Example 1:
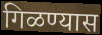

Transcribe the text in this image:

गिळण्यास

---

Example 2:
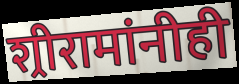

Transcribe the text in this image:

श्रीरामांनीही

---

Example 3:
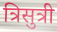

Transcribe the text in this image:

त्रिसुत्री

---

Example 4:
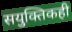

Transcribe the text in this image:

सयुक्तिकही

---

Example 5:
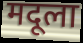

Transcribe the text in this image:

मदूला